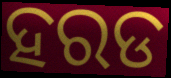
ହରଡ